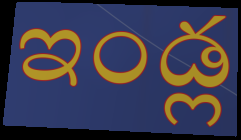
ఇండ్ల